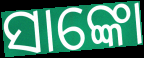
ସାଙ୍କୋ